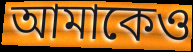
আমাকেও